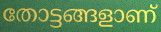
തോട്ടങ്ങളാണ്